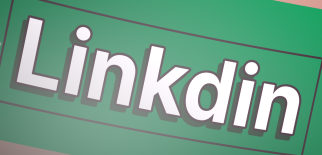
Linkdin